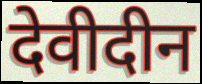
देवीदीन